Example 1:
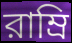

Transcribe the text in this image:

রাম্রি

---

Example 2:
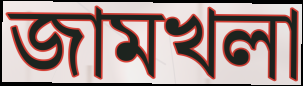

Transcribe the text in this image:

জামখলা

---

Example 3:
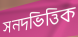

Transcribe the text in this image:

সনদভিত্তিক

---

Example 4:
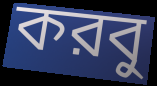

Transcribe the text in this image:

করবু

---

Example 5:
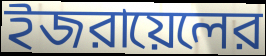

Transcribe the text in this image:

ইজরায়েলের